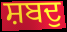
ਸ਼ਬਦੁ